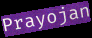
Prayojan